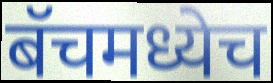
बॅचमध्येच